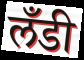
लँडी